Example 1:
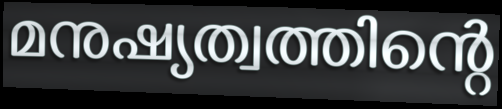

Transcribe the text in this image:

മനുഷ്യത്വത്തിന്റെ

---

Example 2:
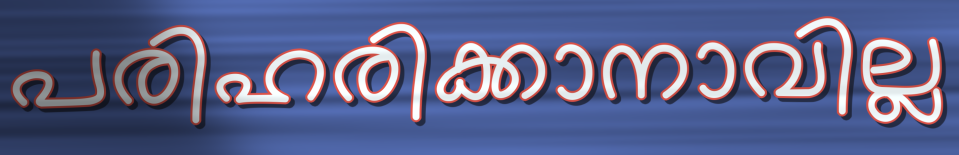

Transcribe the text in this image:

പരിഹരിക്കാനാവില്ല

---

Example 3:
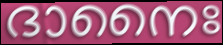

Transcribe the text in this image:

ദാനൈഃ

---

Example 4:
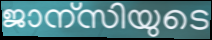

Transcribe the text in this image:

ജാന്സിയുടെ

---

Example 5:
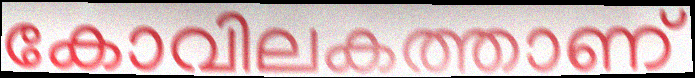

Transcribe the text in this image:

കോവിലകത്താണ്